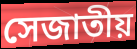
সেজাতীয়